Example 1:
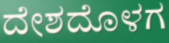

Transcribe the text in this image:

ದೇಶದೊಳಗ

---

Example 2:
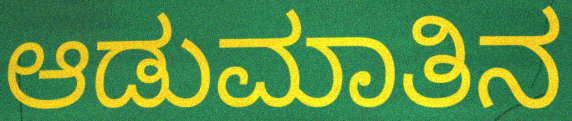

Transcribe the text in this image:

ಆಡುಮಾತಿನ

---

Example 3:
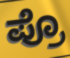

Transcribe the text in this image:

ಪ್ರೊ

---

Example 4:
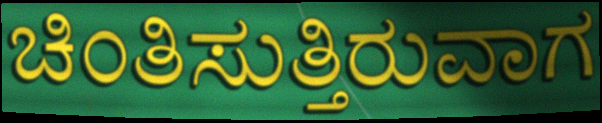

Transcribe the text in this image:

ಚಿಂತಿಸುತ್ತಿರುವಾಗ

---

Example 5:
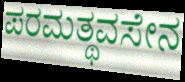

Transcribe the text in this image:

ಪರಮತ್ಥವಸೇನ